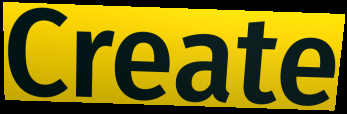
Create